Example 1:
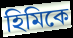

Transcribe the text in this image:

হিমিকে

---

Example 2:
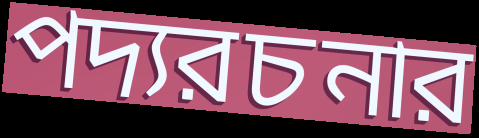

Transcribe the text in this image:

পদ্যরচনার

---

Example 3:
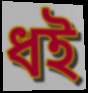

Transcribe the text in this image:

ধই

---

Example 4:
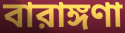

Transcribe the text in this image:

বারাঙ্গণা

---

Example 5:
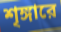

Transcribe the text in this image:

শৃঙ্গারে